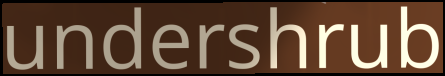
undershrub